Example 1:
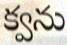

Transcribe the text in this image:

క్వను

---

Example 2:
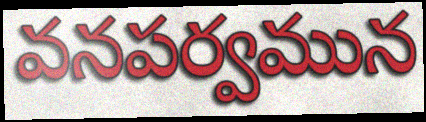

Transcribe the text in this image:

వనపర్వమున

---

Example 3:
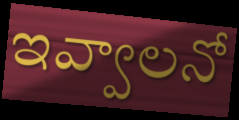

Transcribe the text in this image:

ఇవ్వాలనో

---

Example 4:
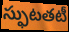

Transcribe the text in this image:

స్ఫుటతటీ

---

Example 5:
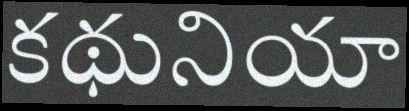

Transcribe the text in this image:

కథునియా